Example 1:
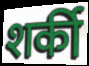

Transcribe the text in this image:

शर्की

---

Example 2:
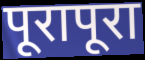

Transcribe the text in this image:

पूरापूरा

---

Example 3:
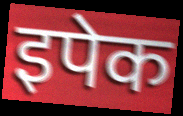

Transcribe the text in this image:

इपेक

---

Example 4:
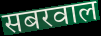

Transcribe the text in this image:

सबरवाल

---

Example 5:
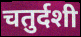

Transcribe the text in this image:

चतुर्दशी